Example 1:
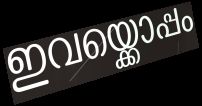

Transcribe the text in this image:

ഇവയ്ക്കൊപ്പം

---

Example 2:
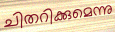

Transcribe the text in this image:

ചിതറിക്കുമെന്നു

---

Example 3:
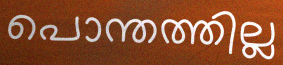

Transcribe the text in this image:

പൊന്തത്തില്ല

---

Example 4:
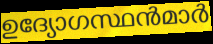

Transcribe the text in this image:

ഉദ്യോഗസ്ഥൻമാർ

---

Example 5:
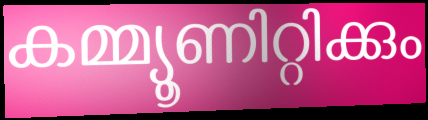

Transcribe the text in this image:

കമ്മ്യൂണിറ്റിക്കും